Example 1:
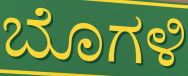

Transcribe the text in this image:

ಬೊಗಳಿ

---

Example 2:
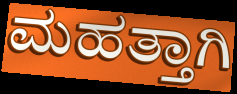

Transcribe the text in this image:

ಮಹತ್ತಾಗಿ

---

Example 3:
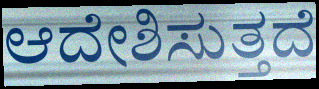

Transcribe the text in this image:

ಆದೇಶಿಸುತ್ತದೆ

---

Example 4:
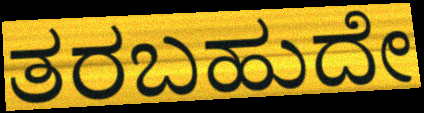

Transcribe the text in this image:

ತರಬಹುದೇ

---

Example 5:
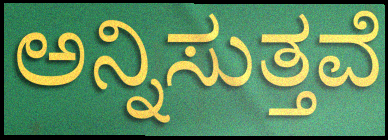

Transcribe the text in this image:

ಅನ್ನಿಸುತ್ತವೆ